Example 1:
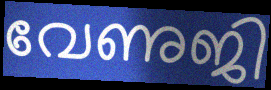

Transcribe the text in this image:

വേണുജി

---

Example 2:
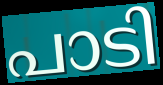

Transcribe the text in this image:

പാടി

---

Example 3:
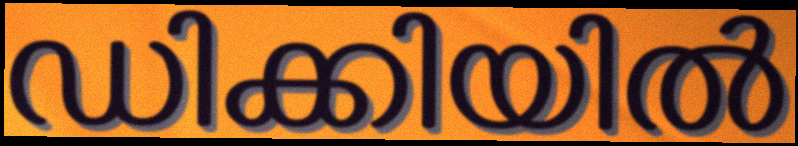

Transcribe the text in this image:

ഡിക്കിയിൽ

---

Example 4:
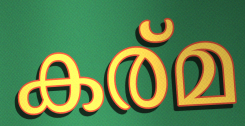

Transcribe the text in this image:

കര്മ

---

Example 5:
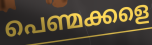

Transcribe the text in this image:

പെണ്മക്കളെ